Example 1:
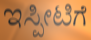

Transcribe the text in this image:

ಇಸ್ಪೀಟಿಗೆ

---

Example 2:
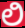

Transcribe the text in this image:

ಲಿ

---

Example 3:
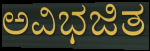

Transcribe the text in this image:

ಅವಿಭಜಿತ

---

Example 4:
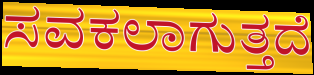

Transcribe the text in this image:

ಸವಕಲಾಗುತ್ತದೆ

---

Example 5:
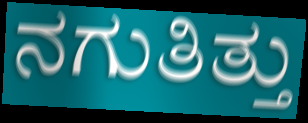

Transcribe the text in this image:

ನಗುತಿತ್ತು